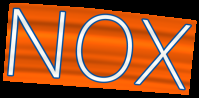
NOX